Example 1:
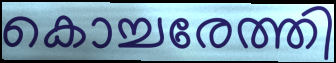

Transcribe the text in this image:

കൊച്ചരേത്തി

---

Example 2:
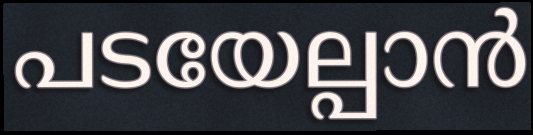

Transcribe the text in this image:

പടയേല്പാൻ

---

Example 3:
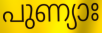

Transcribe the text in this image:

പുണ്യാഃ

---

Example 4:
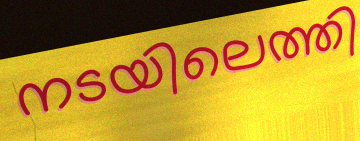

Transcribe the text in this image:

നടയിലെത്തി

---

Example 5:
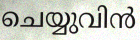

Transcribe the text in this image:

ചെയ്യുവിൻ